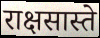
राक्षसास्ते